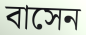
বাসেন